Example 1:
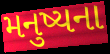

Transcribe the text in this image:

મનુષ્યના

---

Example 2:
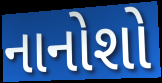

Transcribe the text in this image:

નાનોશો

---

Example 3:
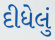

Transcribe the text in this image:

દીધેલું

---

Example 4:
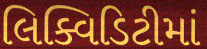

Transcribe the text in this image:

લિક્વિડિટીમાં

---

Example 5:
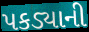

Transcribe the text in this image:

પકડ્યાની